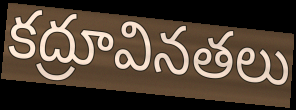
కద్రూవినతలు